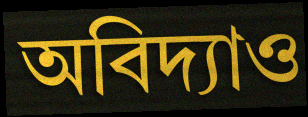
অবিদ্যাও